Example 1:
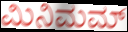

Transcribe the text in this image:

ಮಿನಿಮಮ್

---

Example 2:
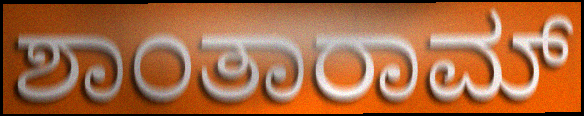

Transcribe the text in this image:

ಶಾಂತಾರಾಮ್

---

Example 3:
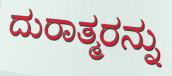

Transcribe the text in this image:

ದುರಾತ್ಮರನ್ನು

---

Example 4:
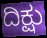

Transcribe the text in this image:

ದಿಕ್ಷು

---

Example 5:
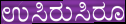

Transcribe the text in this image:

ಉಸಿರುಸಿರೂ